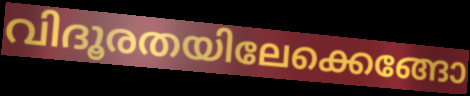
വിദൂരതയിലേക്കെങ്ങോ